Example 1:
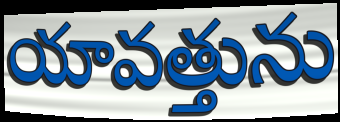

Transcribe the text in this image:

యావత్తును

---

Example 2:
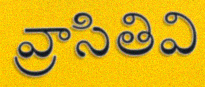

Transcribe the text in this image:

వ్రాసితివి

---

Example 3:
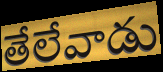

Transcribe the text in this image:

తేలేవాడు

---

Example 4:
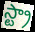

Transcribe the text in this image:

స్ట్రా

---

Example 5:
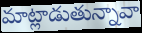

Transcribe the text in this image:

మాట్లాడుతున్నావా